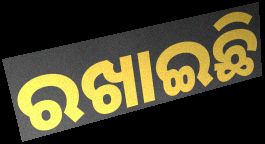
ରଖାଇଛି